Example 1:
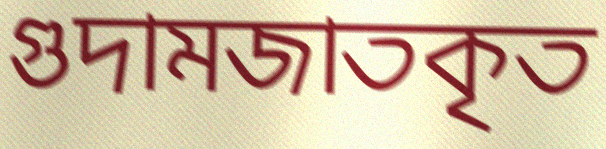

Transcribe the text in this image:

গুদামজাতকৃত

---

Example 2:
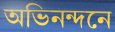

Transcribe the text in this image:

অভিনন্দনে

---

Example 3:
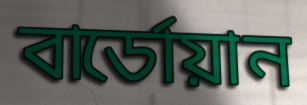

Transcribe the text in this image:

বার্ডোয়ান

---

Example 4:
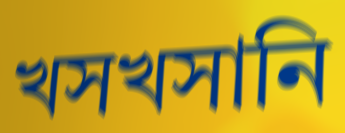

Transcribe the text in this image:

খসখসানি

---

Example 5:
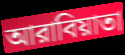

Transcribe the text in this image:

আরাবিয়াতা